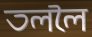
তললৈ